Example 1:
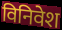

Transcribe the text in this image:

विनिवेश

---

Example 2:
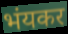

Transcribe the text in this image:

भंयकर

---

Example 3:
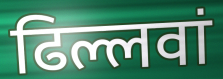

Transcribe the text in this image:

ढिल्लवां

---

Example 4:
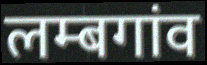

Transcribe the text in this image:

लम्बगांव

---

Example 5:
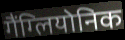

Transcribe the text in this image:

गैंग्लियोनिक